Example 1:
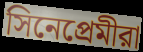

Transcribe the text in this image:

সিনেপ্রেমীরা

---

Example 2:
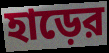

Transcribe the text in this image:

হাড়ের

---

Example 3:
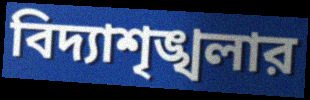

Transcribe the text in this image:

বিদ্যাশৃঙ্খলার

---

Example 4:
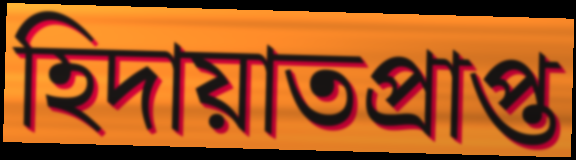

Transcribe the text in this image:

হিদায়াতপ্রাপ্ত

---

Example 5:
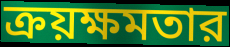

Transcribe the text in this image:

ক্রয়ক্ষমতার